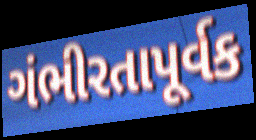
ગંભીરતાપૂર્વક